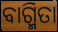
ବାଗ୍ମିତା